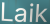
Laik